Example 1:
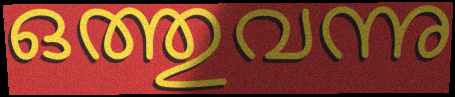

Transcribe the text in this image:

ഒത്തുവന്നു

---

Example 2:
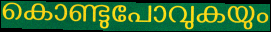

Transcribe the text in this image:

കൊണ്ടുപോവുകയും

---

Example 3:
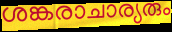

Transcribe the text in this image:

ശങ്കരാചാര്യരും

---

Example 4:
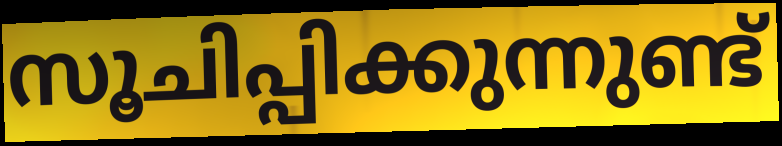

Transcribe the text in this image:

സൂചിപ്പിക്കുന്നുണ്ട്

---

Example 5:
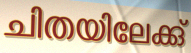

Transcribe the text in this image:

ചിതയിലേക്കു്